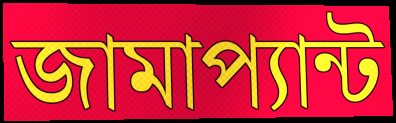
জামাপ্যান্ট